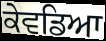
ਕੇਵਡਿਆ